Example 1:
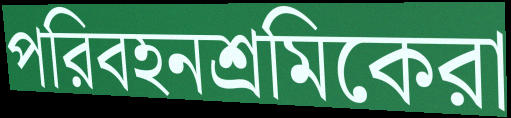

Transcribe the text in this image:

পরিবহনশ্রমিকেরা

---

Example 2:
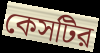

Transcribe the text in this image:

কেসটির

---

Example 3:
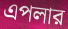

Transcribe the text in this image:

এপলার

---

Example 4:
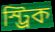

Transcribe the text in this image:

স্ট্রিক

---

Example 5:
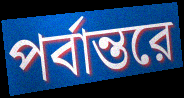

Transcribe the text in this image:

পর্বান্তরে